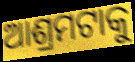
ଆଶ୍ରମଟାକୁ